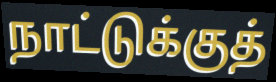
நாட்டுக்குத்